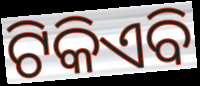
ଟିକିଏବି